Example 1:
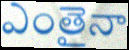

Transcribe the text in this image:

ఎంతైనా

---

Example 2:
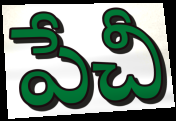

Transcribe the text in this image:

పేచీ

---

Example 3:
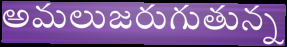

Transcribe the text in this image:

అమలుజరుగుతున్న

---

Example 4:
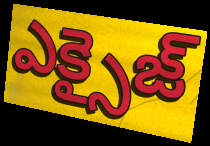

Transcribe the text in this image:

ఎక్సైజ్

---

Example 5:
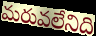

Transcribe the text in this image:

మరువలేనిది